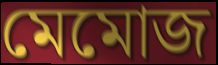
মেমোজ